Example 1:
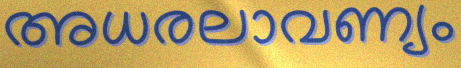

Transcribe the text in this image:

അധരലാവണ്യം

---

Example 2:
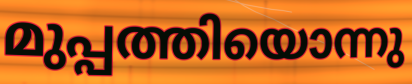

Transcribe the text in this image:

മുപ്പത്തിയൊന്നു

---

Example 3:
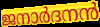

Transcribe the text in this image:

ജനാർദനൻ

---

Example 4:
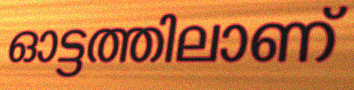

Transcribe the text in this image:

ഓട്ടത്തിലാണ്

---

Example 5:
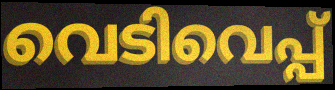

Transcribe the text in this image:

വെടിവെപ്പ്